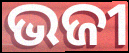
ଭଜୀ